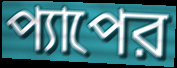
প্যাপের